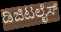
ಡಿಜಿಟಲೈಸ್